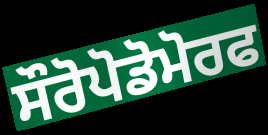
ਸੌਰੋਪੋਡੋਮੋਰਫ